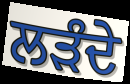
ਲੜੰਦੇ